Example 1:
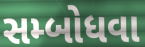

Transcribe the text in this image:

સમ્બોધવા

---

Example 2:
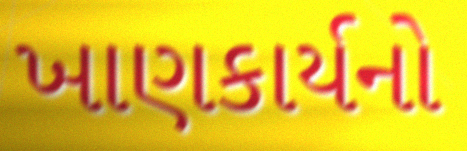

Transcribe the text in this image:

ખાણકાર્યનો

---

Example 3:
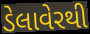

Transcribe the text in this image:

ડેલાવેરથી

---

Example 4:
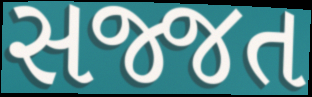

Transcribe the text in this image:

સજ્જત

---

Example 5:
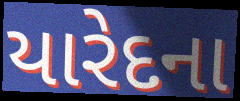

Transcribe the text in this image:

યારેદના